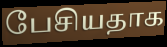
பேசியதாக